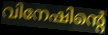
വിനേഷിന്റെ